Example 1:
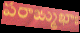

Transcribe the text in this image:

పరాఙ్ముఖాః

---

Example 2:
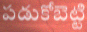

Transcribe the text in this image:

పడుకోబెట్టి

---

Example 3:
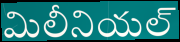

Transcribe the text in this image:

మిలీనియల్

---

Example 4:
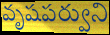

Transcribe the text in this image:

వృషపర్వుని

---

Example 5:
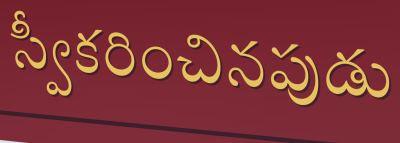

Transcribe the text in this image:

స్వీకరించినపుడు